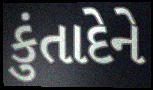
કુંતાદેને